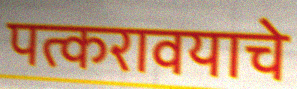
पत्करावयाचे